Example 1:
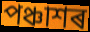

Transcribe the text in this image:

পঞ্চাশৰ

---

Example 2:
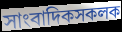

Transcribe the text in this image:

সাংবাদিকসকলক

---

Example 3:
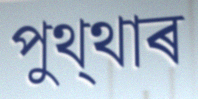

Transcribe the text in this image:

পুথ্থাৰ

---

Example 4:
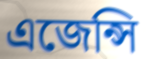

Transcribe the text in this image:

এজেন্সি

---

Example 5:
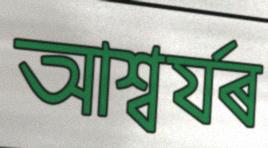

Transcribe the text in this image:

আশ্বৰ্যৰ